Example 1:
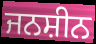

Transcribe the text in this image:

ਜਨਸ਼ੀਨ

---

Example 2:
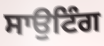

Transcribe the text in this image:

ਸਾਉਟਿੰਗ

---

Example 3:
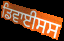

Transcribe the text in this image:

ਡਿਵਾਈਸਸ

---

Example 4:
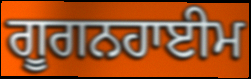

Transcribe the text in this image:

ਗੂਗਨਹਾਈਮ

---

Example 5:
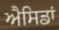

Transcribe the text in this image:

ਐਸਿਡਾਂ